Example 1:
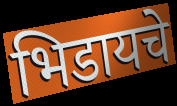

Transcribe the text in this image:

भिडायचे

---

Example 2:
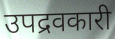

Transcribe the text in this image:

उपद्रवकारी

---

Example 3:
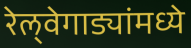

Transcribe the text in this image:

रेल्वेगाड्यांमध्ये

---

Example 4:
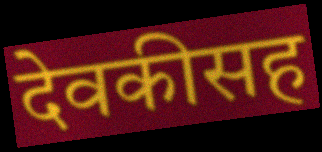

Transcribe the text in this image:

देवकीसह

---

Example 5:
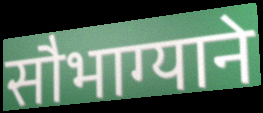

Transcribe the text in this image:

सौभाग्याने